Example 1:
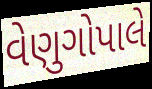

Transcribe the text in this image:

વેણુગોપાલે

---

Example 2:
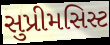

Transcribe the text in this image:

સુપ્રીમસિસ્ટ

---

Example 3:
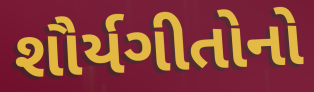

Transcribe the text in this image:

શૌર્યગીતોનો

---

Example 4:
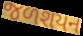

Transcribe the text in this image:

જળશયન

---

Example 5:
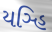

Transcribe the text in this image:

યઞ્હિ